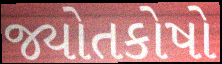
જ્યોતકોષો